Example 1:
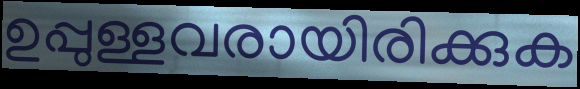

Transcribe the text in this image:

ഉപ്പുള്ളവരായിരിക്കുക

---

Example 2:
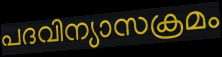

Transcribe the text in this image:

പദവിന്യാസക്രമം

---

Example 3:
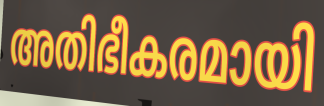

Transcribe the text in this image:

അതിഭീകരമായി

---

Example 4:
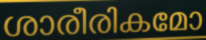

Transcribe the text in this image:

ശാരീരികമോ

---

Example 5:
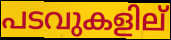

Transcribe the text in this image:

പടവുകളില്